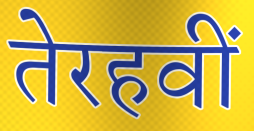
तेरहवीं